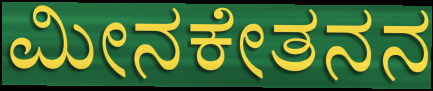
ಮೀನಕೇತನನ